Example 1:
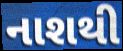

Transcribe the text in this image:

નાશથી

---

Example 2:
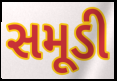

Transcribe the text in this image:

સમૂડી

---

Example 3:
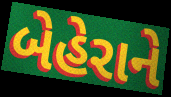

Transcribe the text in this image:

બેહેરાને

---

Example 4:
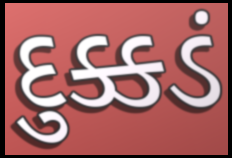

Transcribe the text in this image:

દુક્કડં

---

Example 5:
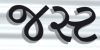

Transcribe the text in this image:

જસ્ટ